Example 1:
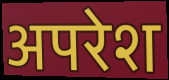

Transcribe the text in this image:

अपरेश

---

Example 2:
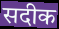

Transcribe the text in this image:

सदीक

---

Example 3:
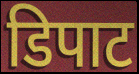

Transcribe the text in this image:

डिपाट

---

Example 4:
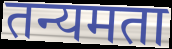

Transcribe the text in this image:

तन्यमता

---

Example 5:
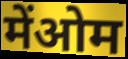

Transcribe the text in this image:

मेंओम